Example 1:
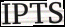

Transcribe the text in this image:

IPTS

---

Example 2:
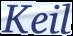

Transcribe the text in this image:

Keil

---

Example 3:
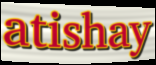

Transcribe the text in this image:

atishay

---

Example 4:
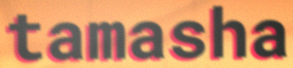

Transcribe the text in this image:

tamasha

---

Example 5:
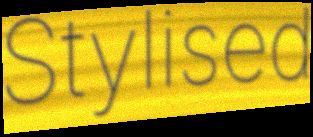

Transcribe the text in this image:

Stylised